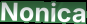
Nonica